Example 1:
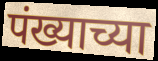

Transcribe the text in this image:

पंख्याच्या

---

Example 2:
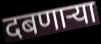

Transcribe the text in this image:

दबणाऱ्या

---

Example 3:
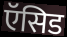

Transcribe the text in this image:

ऍसिड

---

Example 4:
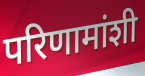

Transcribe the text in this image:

परिणामांशी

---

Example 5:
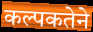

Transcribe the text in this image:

कल्पकतेने